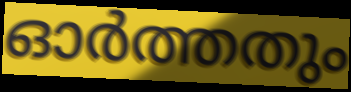
ഓർത്തതും